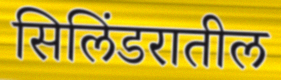
सिलिंडरातील